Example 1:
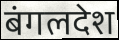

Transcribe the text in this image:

बंगलदेश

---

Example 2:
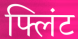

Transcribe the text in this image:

फ्लिंट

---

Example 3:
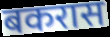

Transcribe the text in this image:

बकरास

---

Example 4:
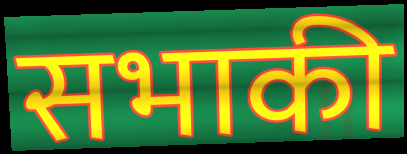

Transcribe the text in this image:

सभाकी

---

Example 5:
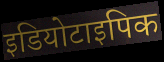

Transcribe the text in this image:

इडियोटाइपिक